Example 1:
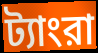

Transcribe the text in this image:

ট্যাংরা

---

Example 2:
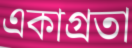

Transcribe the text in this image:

একাগ্রতা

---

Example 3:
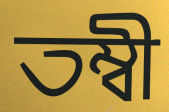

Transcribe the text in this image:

তম্বী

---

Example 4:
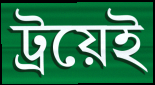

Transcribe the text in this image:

ট্রয়েই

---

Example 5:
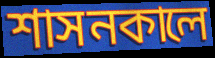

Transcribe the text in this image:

শাসনকালে